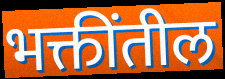
भक्तींतील